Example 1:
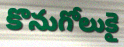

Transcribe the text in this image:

కొనుగోలుకై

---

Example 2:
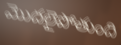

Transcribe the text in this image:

మొదలైపోతుంది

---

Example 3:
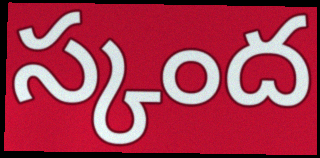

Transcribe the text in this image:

స్కంద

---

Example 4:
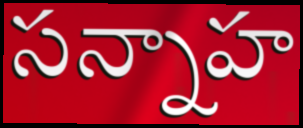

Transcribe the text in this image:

సన్నాహ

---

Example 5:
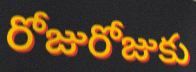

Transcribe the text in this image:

రోజురోజుకు